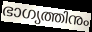
ഭാഗ്യത്തിനും